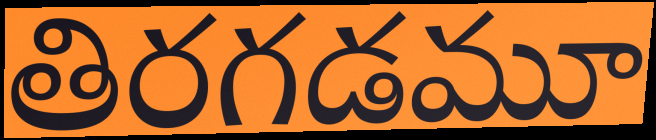
తిరగడమూ